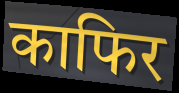
काफिर